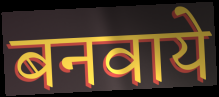
बनवाये